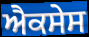
ਐਕਸੇਸ